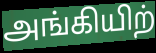
அங்கியிற்